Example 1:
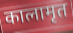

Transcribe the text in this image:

कालामृत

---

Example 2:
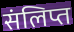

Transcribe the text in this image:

संलिप्त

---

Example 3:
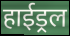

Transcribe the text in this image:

हाईड्रल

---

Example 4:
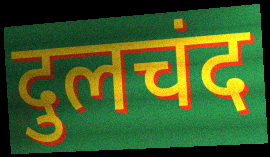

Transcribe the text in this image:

दुलचंद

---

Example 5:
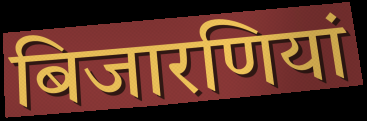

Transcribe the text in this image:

बिजारणियां